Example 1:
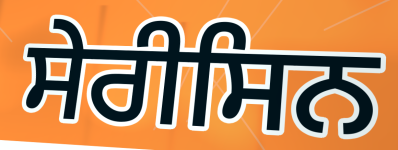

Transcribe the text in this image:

ਸੇਰੀਸਿਨ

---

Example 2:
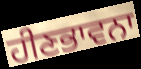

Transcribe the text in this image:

ਹੀਣਭਾਵਨਾ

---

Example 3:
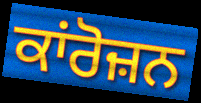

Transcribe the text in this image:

ਕਾਂਰੋਜ਼ਨ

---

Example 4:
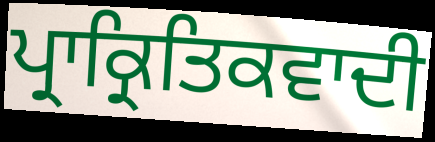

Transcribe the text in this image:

ਪ੍ਰਾਕ੍ਰਿਤਿਕਵਾਦੀ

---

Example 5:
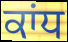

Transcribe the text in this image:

ਕਾਂਧ